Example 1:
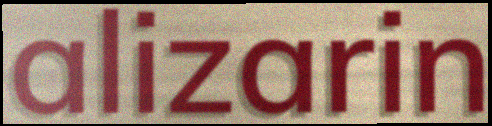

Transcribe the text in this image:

alizarin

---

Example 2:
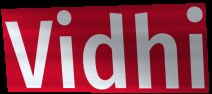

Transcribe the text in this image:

Vidhi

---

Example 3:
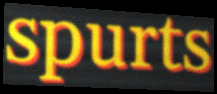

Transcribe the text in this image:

spurts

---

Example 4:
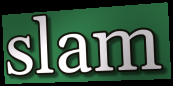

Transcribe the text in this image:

slam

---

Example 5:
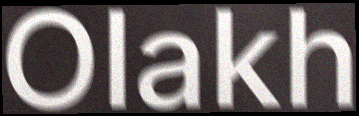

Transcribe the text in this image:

Olakh